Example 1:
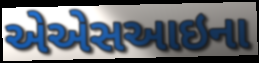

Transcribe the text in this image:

એએસઆઇના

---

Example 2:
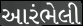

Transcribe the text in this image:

આરંભેલી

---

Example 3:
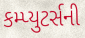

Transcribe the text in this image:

કમ્પ્યુટર્સની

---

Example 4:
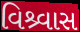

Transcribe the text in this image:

વિશ્ર્વાસ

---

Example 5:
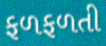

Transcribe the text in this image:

ફળફળતી